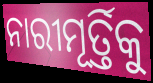
ନାରୀମୂର୍ତ୍ତିକୁ